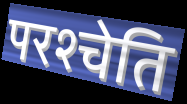
परश्चेति